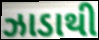
ઝાડાથી